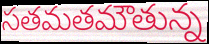
సతమతమౌతున్న